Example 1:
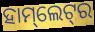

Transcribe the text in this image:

ହାମ୍‌ଲେଟ୍‌ର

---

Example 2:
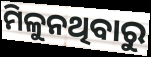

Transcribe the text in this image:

ମିଳୁନଥିବାରୁ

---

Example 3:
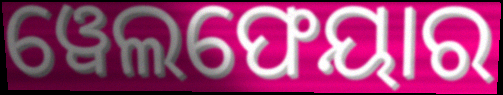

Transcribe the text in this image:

ୱେଲଫେୟାର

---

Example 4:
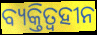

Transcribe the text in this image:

ବ୍ୟକ୍ତିତ୍ୱହୀନ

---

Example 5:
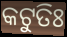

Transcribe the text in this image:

କଟୁତିଃ